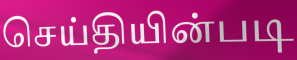
செய்தியின்படி